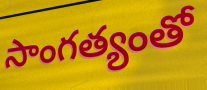
సాంగత్యంతో